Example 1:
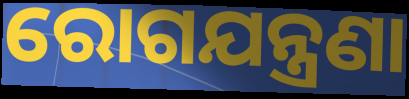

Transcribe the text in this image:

ରୋଗଯନ୍ତ୍ରଣା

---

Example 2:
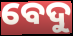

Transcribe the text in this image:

ବେଦୁ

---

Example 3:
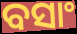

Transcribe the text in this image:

ବସାଂ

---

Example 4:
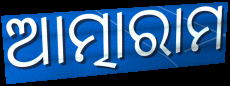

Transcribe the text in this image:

ଆତ୍ମାରାମ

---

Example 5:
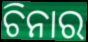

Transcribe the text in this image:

ଚିନାର